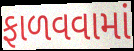
ફાળવવામાં